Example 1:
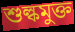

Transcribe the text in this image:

শুল্কমুক্ত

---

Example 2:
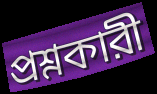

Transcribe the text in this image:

প্রশ্নকারী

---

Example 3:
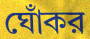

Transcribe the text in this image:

ঘোঁকর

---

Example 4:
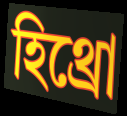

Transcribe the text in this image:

হিথ্রো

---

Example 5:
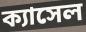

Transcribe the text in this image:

ক্যাসেল